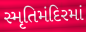
સ્મૃતિમંદિરમાં